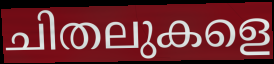
ചിതലുകളെ